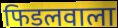
फिडलवाला